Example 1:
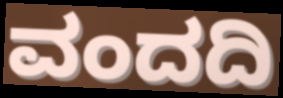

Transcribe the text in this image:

ವಂದದಿ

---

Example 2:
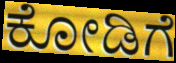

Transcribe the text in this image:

ಕೋಡಿಗೆ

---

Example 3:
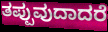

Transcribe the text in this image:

ತಪ್ಪುವುದಾದರೆ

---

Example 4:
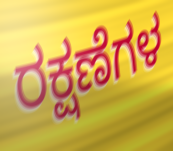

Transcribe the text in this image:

ರಕ್ಷಣೆಗಳ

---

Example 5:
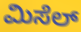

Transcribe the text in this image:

ಮಿಸೆಲ್